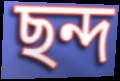
ছন্দ